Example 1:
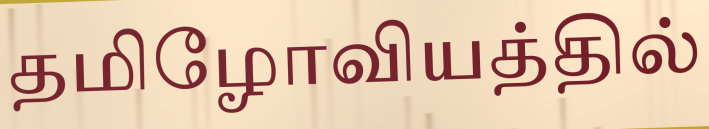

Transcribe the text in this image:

தமிழோவியத்தில்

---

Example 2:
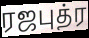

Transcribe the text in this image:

ரஜபுத்ர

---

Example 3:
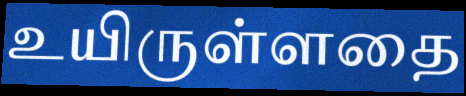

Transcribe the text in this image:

உயிருள்ளதை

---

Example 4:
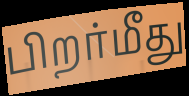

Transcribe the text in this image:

பிறர்மீது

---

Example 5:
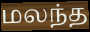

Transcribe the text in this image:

மலந்த